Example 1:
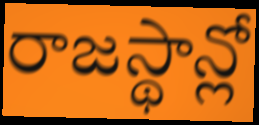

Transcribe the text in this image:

రాజస్థాన్లో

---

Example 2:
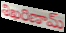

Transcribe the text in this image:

శిఖరిణామ్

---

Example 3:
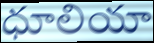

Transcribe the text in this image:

ధూలియా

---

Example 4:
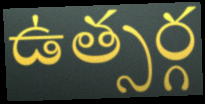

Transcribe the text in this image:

ఉత్సర్గ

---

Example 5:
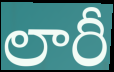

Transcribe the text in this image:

లారీ